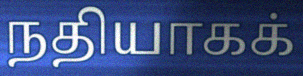
நதியாகக்